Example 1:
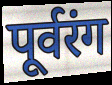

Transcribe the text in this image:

पूर्वरंग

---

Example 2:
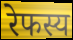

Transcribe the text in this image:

रेफस्य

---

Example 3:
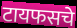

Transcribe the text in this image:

टायफसचे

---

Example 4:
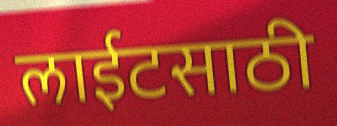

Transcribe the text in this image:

लाईटसाठी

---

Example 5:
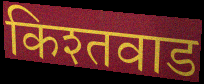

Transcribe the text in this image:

किश्तवाड